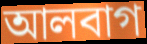
আলবাগ